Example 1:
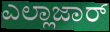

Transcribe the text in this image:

ಎಲ್ಲಾಜಾರ್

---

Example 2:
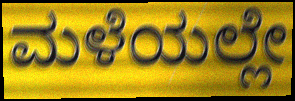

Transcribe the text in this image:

ಮಳೆಯಲ್ಲೇ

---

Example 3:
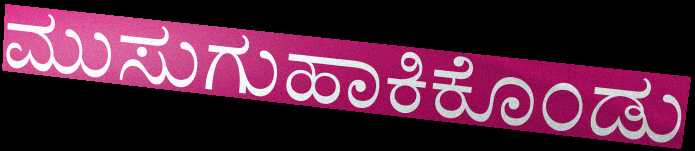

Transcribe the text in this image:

ಮುಸುಗುಹಾಕಿಕೊಂಡು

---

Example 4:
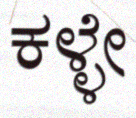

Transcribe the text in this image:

ಕಳ್ಳೇ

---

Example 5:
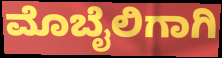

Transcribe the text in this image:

ಮೊಬೈಲಿಗಾಗಿ